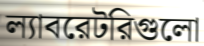
ল্যাবরেটরিগুলো